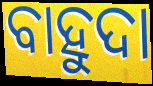
ବାହୁଦା